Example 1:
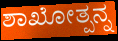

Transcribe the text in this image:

ಶಾಖೋತ್ಪನ್ನ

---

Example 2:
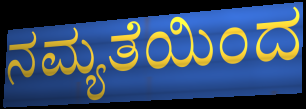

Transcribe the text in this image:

ನಮ್ಯತೆಯಿಂದ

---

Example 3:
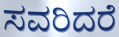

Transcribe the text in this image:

ಸವರಿದರೆ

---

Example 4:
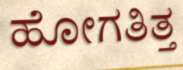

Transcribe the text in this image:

ಹೋಗತಿತ್ತ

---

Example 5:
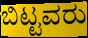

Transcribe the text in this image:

ಬಿಟ್ಟವರು